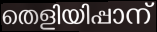
തെളിയിപ്പാന്